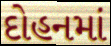
દોહનમાં